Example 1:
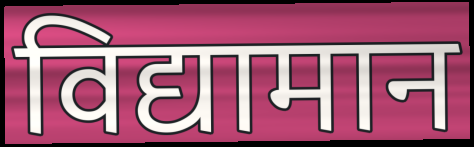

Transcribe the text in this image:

विद्यामान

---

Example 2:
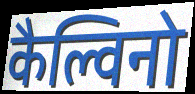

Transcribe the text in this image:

कैल्विनो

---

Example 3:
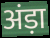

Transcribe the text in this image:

अंड़ा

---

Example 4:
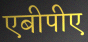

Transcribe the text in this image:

एबीपीए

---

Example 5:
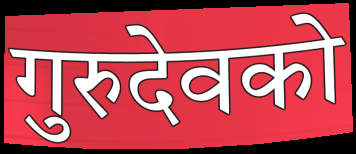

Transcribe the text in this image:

गुरुदेवको